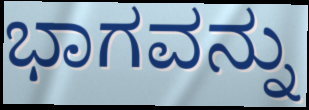
ಭಾಗವನ್ನು